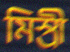
মিস্ত্ৰী